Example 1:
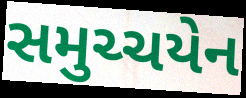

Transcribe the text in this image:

સમુચ્ચયેન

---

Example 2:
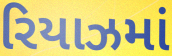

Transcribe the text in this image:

રિયાઝમાં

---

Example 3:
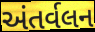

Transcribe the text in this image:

અંતર્વલન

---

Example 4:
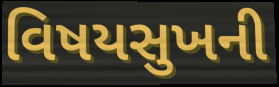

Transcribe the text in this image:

વિષયસુખની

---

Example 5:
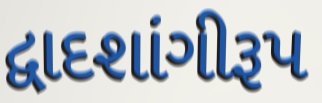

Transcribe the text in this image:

દ્વાદશાંગીરૂપ